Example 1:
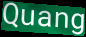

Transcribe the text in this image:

Quang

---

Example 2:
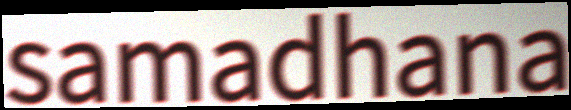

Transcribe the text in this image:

samadhana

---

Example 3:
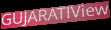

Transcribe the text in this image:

GUJARATIView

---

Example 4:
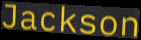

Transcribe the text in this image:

Jackson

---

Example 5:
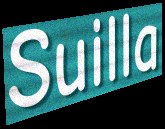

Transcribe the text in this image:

Suilla